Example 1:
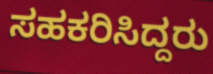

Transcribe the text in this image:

ಸಹಕರಿಸಿದ್ದರು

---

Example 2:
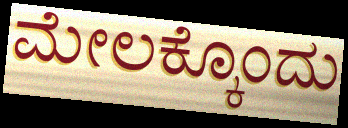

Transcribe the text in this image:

ಮೇಲಕ್ಕೊಂದು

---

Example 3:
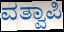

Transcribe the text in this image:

ವತ್ವಾಪಿ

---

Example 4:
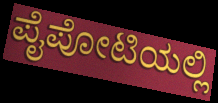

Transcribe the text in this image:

ಪೈಪೋಟಿಯಲ್ಲಿ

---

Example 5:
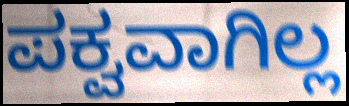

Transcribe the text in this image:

ಪಕ್ವವಾಗಿಲ್ಲ